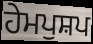
ਹੇਮਪੁਸ਼ਪ